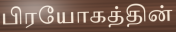
பிரயோகத்தின்